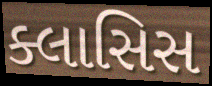
ક્લાસિસ